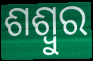
ଶଶ୍ୱୁର